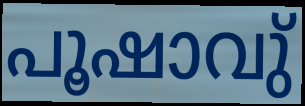
പൂഷാവു്